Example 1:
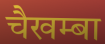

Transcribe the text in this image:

चैखम्बा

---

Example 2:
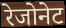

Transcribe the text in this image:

रेजोनेट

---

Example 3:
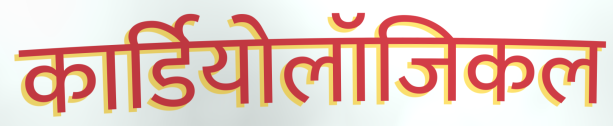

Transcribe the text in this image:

कार्डियोलॉजिकल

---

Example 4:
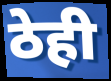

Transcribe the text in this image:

ठेही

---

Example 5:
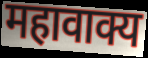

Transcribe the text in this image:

महावाक्य